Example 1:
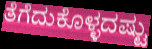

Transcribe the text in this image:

ತೆಗೆದುಕೊಳ್ಳದಷ್ಟು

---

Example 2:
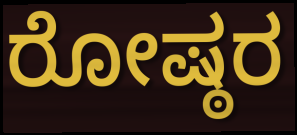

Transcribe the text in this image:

ರೋಷ್ಠರ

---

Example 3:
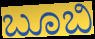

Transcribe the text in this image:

ಬೂಬಿ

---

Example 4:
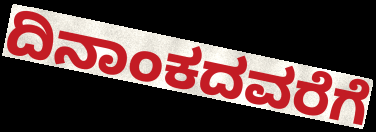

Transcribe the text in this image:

ದಿನಾಂಕದವರೆಗೆ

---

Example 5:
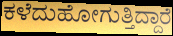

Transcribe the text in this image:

ಕಳೆದುಹೋಗುತ್ತಿದ್ದಾರೆ